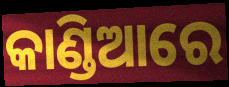
କାଣ୍ଡିଆରେ